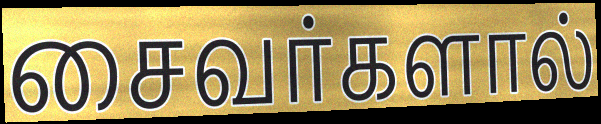
சைவர்களால்